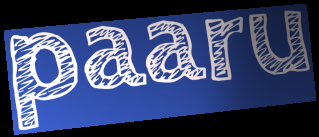
paaru